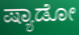
ಷ್ಯಾಡೋ